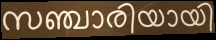
സഞ്ചാരിയായി